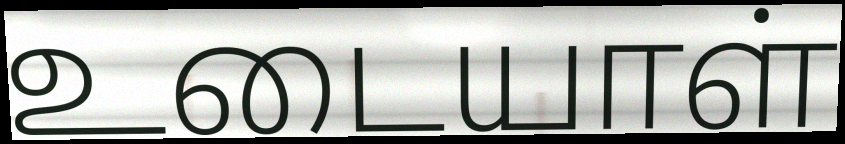
உடையாள்